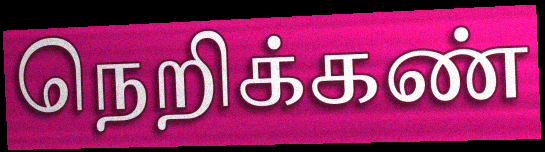
நெறிக்கண்